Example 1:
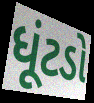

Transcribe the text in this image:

ધૂંટડો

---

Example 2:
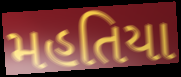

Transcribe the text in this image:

મહતિયા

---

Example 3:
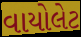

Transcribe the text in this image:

વાયોલેટ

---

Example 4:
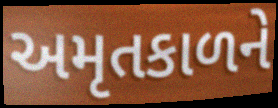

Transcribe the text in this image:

અમૃતકાળને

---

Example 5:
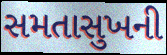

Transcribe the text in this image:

સમતાસુખની